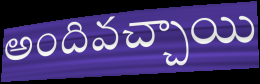
అందివచ్చాయి